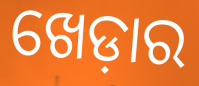
ଖେଡ଼ାର